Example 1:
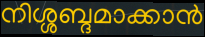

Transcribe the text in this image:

നിശ്ശബ്ദമാക്കാൻ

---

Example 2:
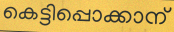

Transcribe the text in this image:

കെട്ടിപ്പൊക്കാന്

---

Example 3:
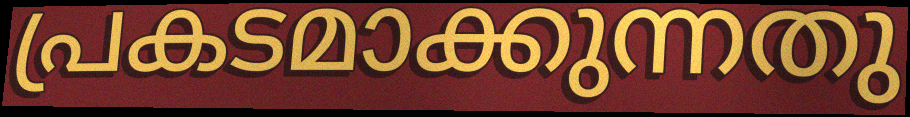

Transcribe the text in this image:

പ്രകടമാക്കുന്നതു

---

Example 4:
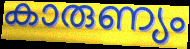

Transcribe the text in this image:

കാരുണ്യം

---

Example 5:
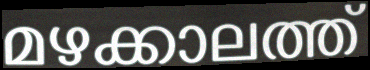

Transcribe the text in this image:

മഴക്കാലത്ത്